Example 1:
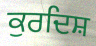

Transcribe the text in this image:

ਕੁਰਦਿਸ਼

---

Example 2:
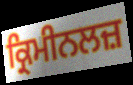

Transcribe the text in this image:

ਕ੍ਰਿਮੀਨਲਜ਼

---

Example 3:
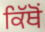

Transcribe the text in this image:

ਕਿੱਥੋੰ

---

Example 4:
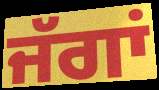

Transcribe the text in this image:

ਜੱਗਾਂ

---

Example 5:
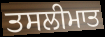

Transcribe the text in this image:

ਤਸਲੀਮਾਤ